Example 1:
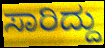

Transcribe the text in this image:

ಸಾರಿದ್ದು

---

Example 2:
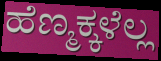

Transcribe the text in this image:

ಹೆಣ್ಮಕ್ಕಳೆಲ್ಲ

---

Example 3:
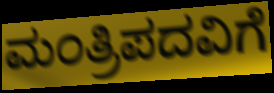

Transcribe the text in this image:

ಮಂತ್ರಿಪದವಿಗೆ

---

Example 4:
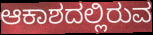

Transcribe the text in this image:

ಆಕಾಶದಲ್ಲಿರುವ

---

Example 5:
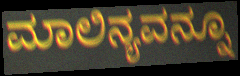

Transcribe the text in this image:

ಮಾಲಿನ್ಯವನ್ನೂ